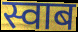
स्वाब